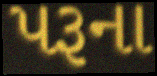
પરૂના